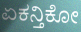
ಏಕನ್ತಿಕೋ